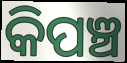
କିପଞ୍ଚ